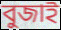
বুজাই